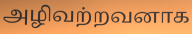
அழிவற்றவனாக